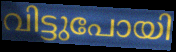
വിട്ടുപോയി